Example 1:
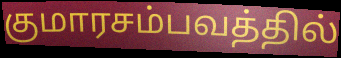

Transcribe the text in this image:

குமாரசம்பவத்தில்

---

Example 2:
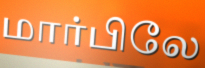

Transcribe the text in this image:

மார்பிலே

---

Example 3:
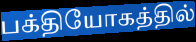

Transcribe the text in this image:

பக்தியோகத்தில்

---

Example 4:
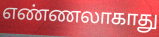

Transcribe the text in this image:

எண்ணலாகாது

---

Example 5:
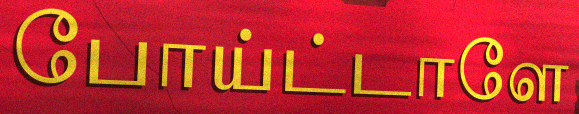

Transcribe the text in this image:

போய்ட்டாளே